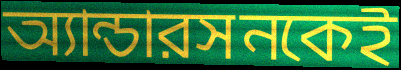
অ্যান্ডারসনকেই